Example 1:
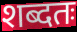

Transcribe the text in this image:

शब्दतः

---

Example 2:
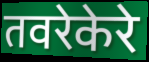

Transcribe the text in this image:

तवरेकेरे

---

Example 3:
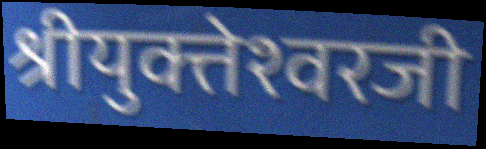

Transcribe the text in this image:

श्रीयुक्तेश्वरजी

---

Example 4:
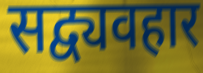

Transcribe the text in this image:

सद्व्यवहार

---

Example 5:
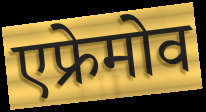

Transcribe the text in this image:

एफ्रेमोव